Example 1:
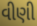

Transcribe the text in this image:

વીણી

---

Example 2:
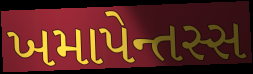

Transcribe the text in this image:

ખમાપેન્તસ્સ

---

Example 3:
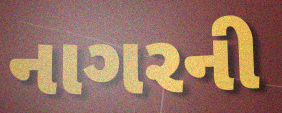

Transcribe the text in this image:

નાગરની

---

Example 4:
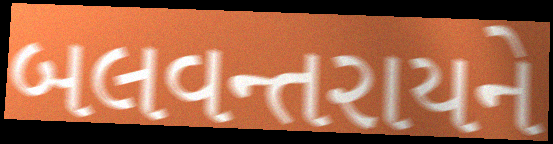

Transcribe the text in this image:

બલવન્તરાયને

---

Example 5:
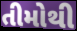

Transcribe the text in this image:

તીમોથી